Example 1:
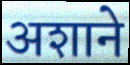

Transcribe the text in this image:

अशाने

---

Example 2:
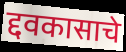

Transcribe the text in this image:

द्दवकासाचे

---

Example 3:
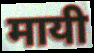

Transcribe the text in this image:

मायी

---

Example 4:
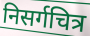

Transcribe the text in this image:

निसर्गचित्र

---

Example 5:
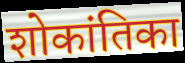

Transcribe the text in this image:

शोकांतिका